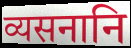
व्यसनानि